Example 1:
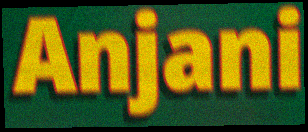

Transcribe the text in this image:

Anjani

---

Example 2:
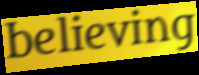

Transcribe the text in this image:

believing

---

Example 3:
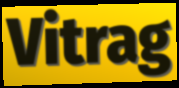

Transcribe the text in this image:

Vitrag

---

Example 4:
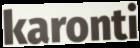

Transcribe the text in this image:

karonti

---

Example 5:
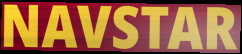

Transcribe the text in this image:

NAVSTAR